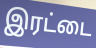
இரட்டை